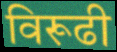
विरूढी